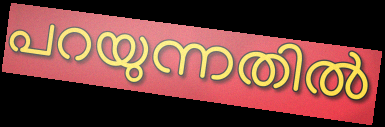
പറയുന്നതിൽ